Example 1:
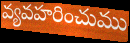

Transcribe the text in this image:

వ్యవహరించుము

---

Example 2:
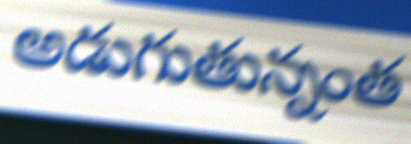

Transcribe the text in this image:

అడుగుతున్నంత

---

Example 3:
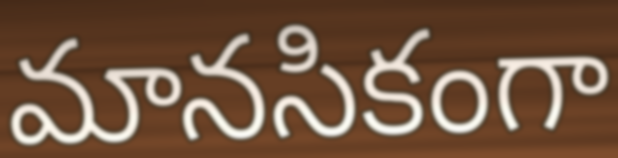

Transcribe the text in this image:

మానసికంగా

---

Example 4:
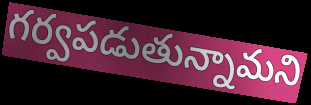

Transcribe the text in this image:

గర్వపడుతున్నామని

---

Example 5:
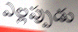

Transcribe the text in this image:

ఎల్లప్పుడు